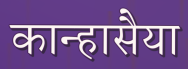
कान्हासैया